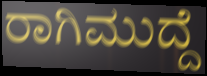
ರಾಗಿಮುದ್ದೆ